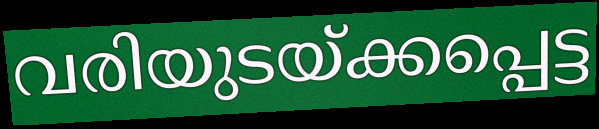
വരിയുടയ്ക്കപ്പെട്ട